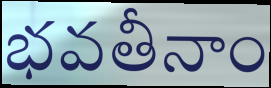
భవతీనాం